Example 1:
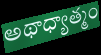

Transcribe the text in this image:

అథాధ్యాత్మం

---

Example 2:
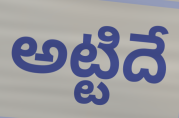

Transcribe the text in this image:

అట్టిదే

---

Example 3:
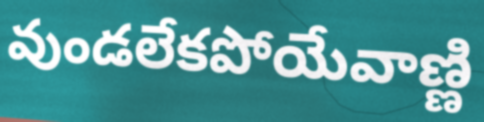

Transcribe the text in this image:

వుండలేకపోయేవాణ్ణి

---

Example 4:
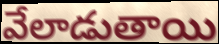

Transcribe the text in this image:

వేలాడుతాయి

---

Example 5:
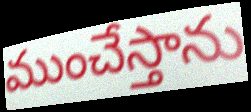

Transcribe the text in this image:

ముంచేస్తాను